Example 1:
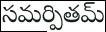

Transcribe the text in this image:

సమర్పితమ్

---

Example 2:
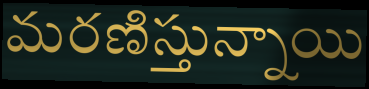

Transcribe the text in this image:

మరణిస్తున్నాయి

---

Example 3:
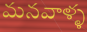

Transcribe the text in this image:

మనవాళ్ళ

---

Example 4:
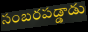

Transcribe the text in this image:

సంబరపడ్డాడు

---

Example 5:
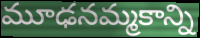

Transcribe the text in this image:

మూఢనమ్మకాన్ని